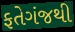
ફતેગંજથી